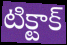
టిక్టాక్